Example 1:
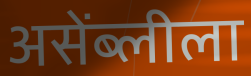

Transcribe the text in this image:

असेंब्लीला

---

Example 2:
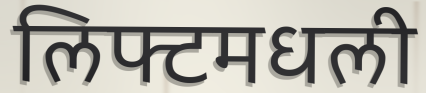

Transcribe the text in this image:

लिफ्टमधली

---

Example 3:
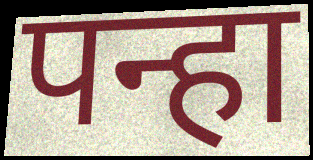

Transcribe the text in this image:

पन्हा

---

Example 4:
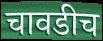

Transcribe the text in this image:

चावडीच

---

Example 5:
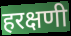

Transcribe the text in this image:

हरक्षणी